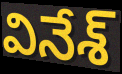
వినేశ్